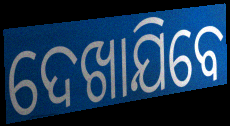
ଦେଖାଯିବେ